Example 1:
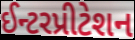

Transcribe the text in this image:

ઈન્ટરપ્રીટેશન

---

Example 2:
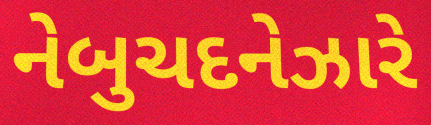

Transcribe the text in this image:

નેબુચદનેઝારે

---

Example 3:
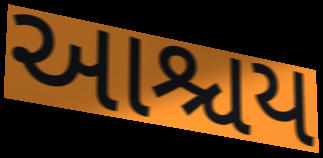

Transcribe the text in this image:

આશ્ચય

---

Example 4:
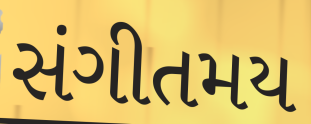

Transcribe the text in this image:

સંગીતમય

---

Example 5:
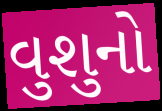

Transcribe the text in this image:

વુશુનો